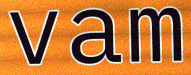
vam